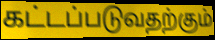
கட்டப்படுவதற்கும்